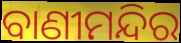
ବାଣୀମନ୍ଦିର